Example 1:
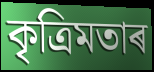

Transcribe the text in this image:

কৃত্ৰিমতাৰ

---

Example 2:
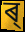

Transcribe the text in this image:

ৰ্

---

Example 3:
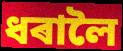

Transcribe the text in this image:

ধৰালৈ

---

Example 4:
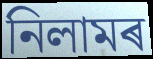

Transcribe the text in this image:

নিলামৰ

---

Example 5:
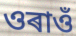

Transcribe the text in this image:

ওৰাওঁ